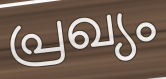
പ്രഖ്യം